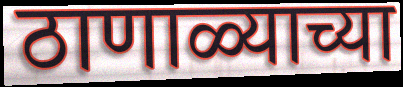
ठाणाळ्याच्या